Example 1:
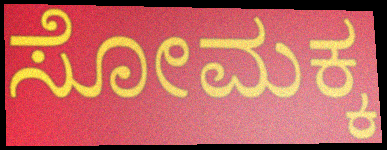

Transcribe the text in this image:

ಸೋಮಕ್ಕ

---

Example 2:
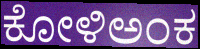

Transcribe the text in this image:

ಕೋಳಿಅಂಕ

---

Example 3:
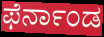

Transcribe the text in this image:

ಫೆರ್ನಾಂಡ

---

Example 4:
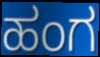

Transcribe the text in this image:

ಹಂಗ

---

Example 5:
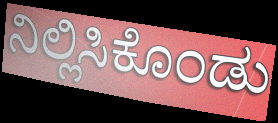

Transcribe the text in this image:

ನಿಲ್ಲಿಸಿಕೊಂಡು